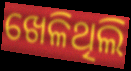
ଖେଳିଥିଲି